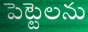
పెట్టెలను